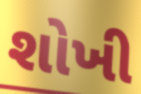
શોખી